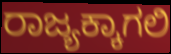
ರಾಜ್ಯಕ್ಕಾಗಲಿ